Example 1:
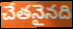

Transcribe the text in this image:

చేతనైనది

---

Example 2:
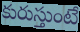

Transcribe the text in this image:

కురుస్తుంటే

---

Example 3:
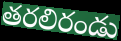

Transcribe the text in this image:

తరలిరండు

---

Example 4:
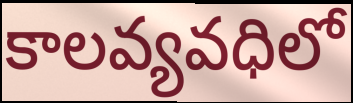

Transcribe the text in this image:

కాలవ్యవధిలో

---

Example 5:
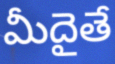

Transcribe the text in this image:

మీదైతే